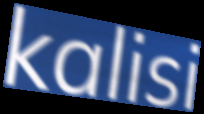
kalisi